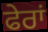
ਫੇਰਾਂ